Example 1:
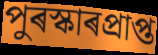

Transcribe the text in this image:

পুৰস্কাৰপ্ৰাপ্ত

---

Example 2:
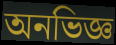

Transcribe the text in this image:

অনভিজ্ঞ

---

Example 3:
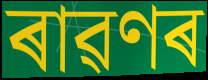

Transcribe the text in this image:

ৰাৱণৰ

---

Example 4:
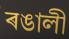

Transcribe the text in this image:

ৰঙালী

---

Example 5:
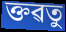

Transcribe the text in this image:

ক্তৱতু